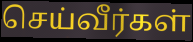
செய்வீர்கள்